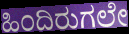
ಹಿಂದಿರುಗಲೇ